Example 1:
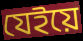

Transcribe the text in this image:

যেইয়ে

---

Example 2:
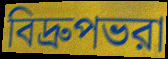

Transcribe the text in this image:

বিদ্রুপভরা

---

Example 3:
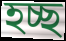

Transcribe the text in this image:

হচ্ছ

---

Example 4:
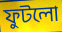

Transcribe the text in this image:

ফুটলো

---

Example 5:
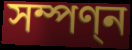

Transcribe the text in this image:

সম্পণ্ন